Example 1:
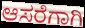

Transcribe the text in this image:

ಆಸರೆಗಾಗಿ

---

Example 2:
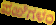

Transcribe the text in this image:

ಪಱೆಗಳಂ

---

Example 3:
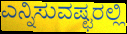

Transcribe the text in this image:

ಎನ್ನಿಸುವಷ್ಟರಲ್ಲಿ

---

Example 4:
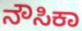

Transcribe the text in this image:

ನೌಸಿಕಾ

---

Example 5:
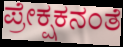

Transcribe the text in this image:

ಪ್ರೇಕ್ಷಕನಂತೆ